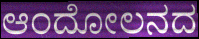
ಆಂದೋಲನದ